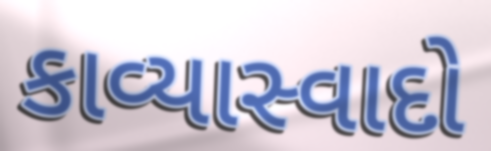
કાવ્યાસ્વાદો